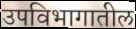
उपविभागातील